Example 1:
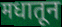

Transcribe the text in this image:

मधातून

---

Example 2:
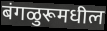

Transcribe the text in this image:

बंगळुरूमधील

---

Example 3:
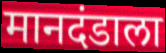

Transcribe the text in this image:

मानदंडाला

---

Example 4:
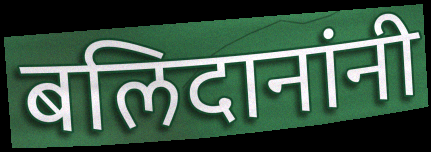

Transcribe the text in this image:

बलिदानांनी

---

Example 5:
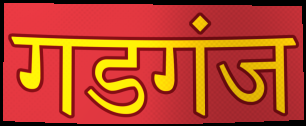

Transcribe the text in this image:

गडगंज